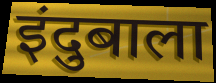
इंदुबाला